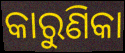
କାରୁଣିକା